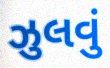
ઝુલવું